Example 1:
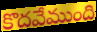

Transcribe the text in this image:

కొదవేముంది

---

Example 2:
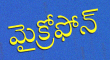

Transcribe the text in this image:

మైక్రోఫోన్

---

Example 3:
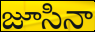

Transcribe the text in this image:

జూసినా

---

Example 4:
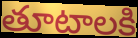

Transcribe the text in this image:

తూటాలకి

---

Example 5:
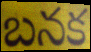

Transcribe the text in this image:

బనక